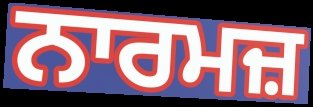
ਨਾਰਮਜ਼